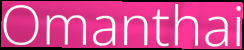
Omanthai